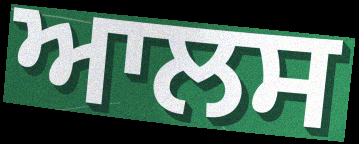
ਆਲਸ